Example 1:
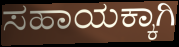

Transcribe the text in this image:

ಸಹಾಯಕ್ಕಾಗಿ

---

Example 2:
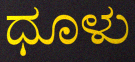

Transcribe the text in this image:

ಧೂಳು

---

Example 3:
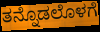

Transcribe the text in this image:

ತನ್ನೊಡಲೊಳಗೆ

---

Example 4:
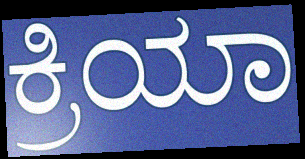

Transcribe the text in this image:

ಕ್ರಿಯಾ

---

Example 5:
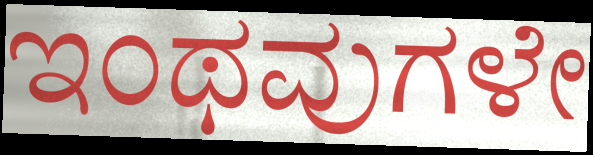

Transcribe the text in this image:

ಇಂಥವುಗಳೇ